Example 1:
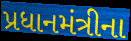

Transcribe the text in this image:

પ્રધાનમંત્રીના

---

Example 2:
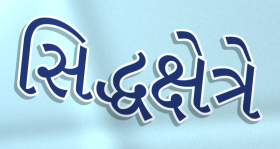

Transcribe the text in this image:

સિદ્ધક્ષેત્રે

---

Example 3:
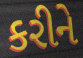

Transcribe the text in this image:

કરીને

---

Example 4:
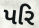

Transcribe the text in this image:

પરિ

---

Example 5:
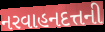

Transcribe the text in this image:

નરવાહનદત્તની